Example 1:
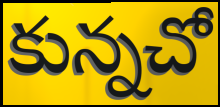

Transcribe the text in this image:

కున్నచో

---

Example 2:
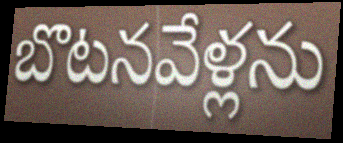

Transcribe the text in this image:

బొటనవేళ్లను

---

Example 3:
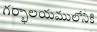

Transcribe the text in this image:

గర్భాలయములోనికి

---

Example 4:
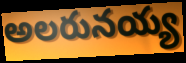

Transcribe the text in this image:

అలరునయ్య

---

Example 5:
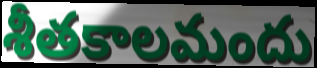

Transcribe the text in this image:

శీతకాలమందు